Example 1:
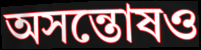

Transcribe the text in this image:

অসন্তোষও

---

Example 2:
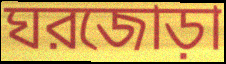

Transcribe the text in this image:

ঘরজোড়া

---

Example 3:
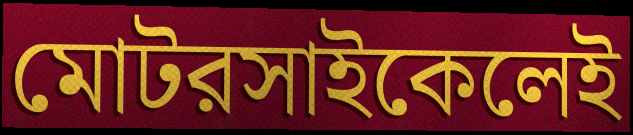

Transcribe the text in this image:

মোটরসাইকেলেই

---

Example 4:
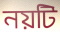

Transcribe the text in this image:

নয়টি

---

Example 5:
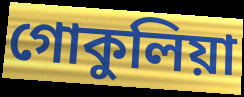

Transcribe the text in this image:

গোকুলিয়া